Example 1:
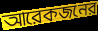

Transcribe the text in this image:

আরেকজনের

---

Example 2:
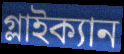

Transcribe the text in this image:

গ্লাইক্যান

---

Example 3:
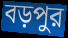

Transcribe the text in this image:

বড়পুর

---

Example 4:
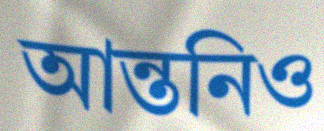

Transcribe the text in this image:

আন্তনিও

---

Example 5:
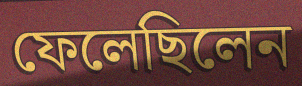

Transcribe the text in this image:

ফেলেছিলেন